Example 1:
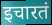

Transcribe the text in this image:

इचारतं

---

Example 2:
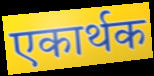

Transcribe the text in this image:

एकार्थक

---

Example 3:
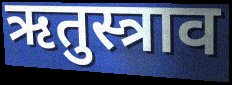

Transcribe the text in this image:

ऋतुस्त्राव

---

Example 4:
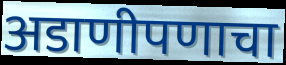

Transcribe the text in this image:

अडाणीपणाचा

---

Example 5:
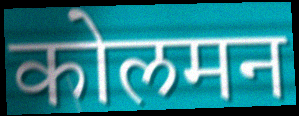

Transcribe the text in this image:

कोलमन